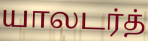
யாலடர்த்